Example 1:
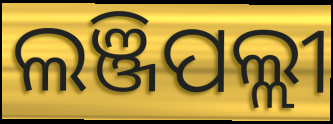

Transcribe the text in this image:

ଲଞ୍ଜିପଲ୍ଲୀ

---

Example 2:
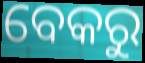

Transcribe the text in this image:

ବେକରୁ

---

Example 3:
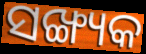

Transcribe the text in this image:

ସଙ୍ଖ୍ୟକ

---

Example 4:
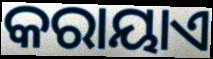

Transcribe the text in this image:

କରାୟାଏ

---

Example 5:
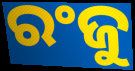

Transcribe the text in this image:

ରଂଜୁ